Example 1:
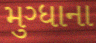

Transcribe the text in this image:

મુગ્ધાના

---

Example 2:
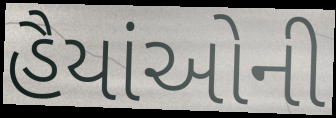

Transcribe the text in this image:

હૈયાંઓની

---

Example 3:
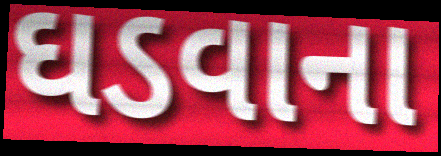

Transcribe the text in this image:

ઘડવાના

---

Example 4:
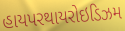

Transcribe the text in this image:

હાયપરથાયરોઇડિઝમ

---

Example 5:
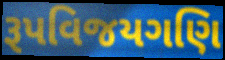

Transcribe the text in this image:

રૂપવિજયગણિ